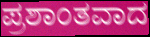
ಪ್ರಶಾಂತವಾದ